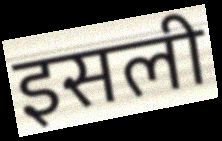
इसली